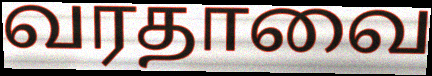
வரதாவை